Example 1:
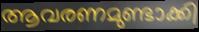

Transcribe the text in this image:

ആവരണമുണ്ടാക്കി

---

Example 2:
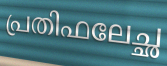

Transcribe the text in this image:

പ്രതിഫലേച്ഛ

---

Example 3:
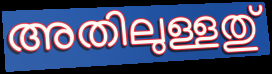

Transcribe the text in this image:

അതിലുള്ളതു്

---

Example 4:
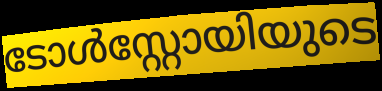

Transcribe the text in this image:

ടോൾസ്റ്റോയിയുടെ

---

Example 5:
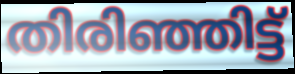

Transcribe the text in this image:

തിരിഞ്ഞിട്ട്